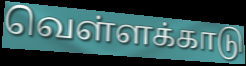
வெள்ளக்காடு